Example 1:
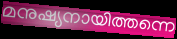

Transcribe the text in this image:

മനുഷ്യനായിത്തന്നെ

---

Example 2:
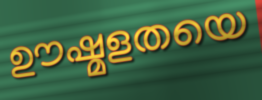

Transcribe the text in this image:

ഊഷ്മളതയെ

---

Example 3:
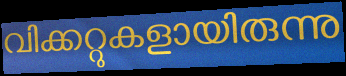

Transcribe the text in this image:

വിക്കറ്റുകളായിരുന്നു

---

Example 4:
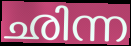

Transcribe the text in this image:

ഛിന്ന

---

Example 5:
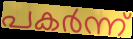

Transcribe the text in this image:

പകർന്ന്